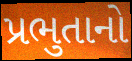
પ્રભુતાનો